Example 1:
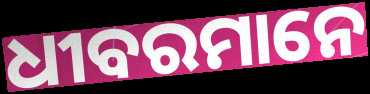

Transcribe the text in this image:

ଧୀବରମାନେ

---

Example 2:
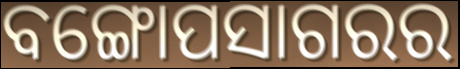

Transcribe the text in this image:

ବଙ୍ଗୋପସାଗରର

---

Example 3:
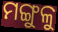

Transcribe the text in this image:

ମଙ୍ଗୁଳୁ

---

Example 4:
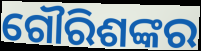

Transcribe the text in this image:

ଗୌରିଶଙ୍କର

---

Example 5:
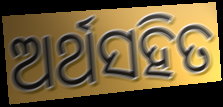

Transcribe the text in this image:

ଅର୍ଥସହିତ